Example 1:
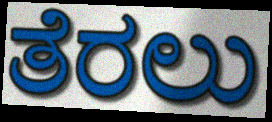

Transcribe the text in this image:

ತೆರಲು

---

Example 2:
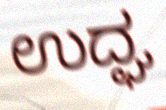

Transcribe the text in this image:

ಉದ್ಘ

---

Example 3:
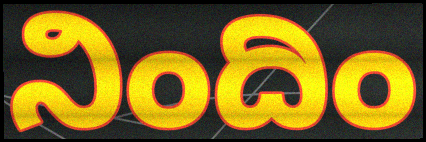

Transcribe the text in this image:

ನಿಂದಿಂ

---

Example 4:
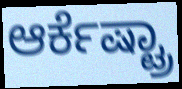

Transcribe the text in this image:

ಆರ್ಕೆಷ್ಟ್ರಾ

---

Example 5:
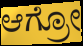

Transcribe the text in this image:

ಆಗ್ರೋ